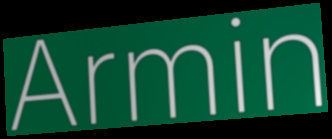
Armin